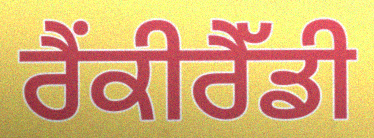
ਰੈਂਕੀਰੈੱਡੀ